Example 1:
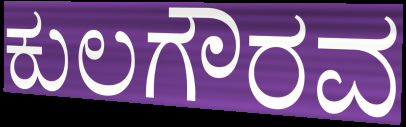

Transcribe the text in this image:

ಕುಲಗೌರವ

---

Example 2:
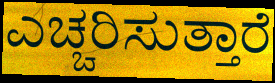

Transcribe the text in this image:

ಎಚ್ಚರಿಸುತ್ತಾರೆ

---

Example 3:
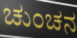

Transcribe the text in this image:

ಚುಂಚನ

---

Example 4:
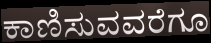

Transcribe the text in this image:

ಕಾಣಿಸುವವರೆಗೂ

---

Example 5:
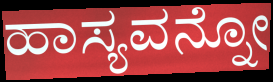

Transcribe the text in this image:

ಹಾಸ್ಯವನ್ನೋ